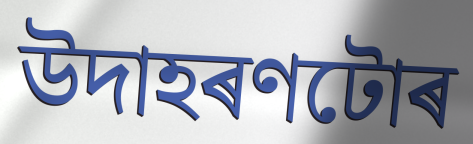
উদাহৰণটোৰ